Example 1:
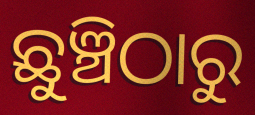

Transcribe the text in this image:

ଛୁଞ୍ଚିଠାରୁ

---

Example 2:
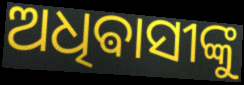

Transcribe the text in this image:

ଅଧିଵାସୀଙ୍କୁ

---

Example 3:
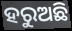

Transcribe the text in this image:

ହରୁଅଛି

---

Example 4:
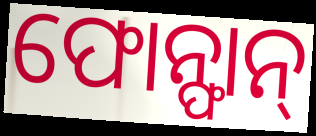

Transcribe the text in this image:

ଫୋନ୍ଫାନ୍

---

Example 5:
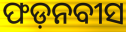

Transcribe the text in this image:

ଫଡ଼ନବୀସ